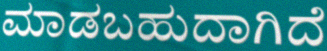
ಮಾಡಬಹುದಾಗಿದೆ